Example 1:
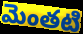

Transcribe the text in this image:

మెంతటి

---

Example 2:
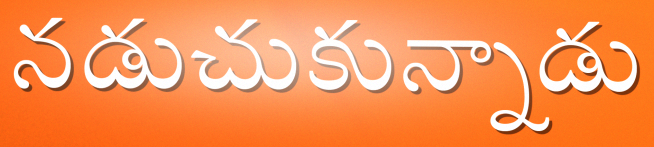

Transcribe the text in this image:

నడుచుకున్నాడు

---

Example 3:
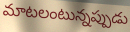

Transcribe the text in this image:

మాటలంటున్నప్పుడు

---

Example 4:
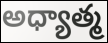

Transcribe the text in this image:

అధ్యాత్మ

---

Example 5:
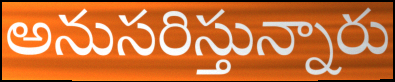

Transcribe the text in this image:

అనుసరిస్తున్నారు